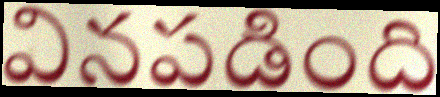
వినపడింది